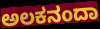
ಅಲಕನಂದಾ